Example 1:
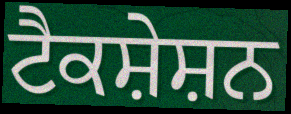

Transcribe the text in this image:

ਟੈਕਸ਼ੇਸ਼ਨ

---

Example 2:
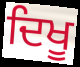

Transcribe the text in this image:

ਦਿਖੂ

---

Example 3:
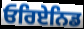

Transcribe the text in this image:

ਓਰਿਏਨਿਡ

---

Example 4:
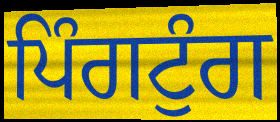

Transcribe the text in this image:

ਪਿੰਗਟੁੰਗ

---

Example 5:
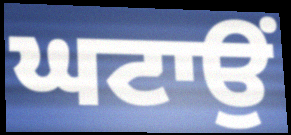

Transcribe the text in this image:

ਘਟਾਉਂ